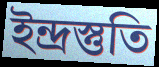
ইন্দ্রস্তুতি